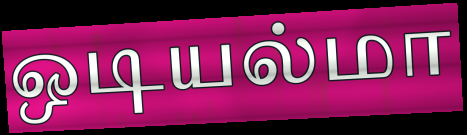
ஒடியல்மா